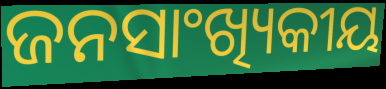
ଜନସାଂଖ୍ୟିକୀୟ